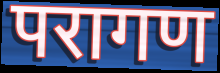
परागण